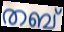
തബ്